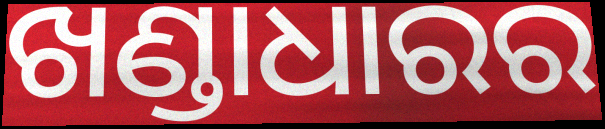
ଖଣ୍ଡାଧାରର